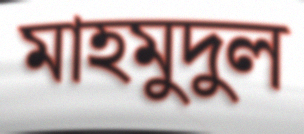
মাহমুদুল